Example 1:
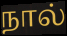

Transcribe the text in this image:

நால்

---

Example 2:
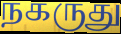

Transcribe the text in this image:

நகருது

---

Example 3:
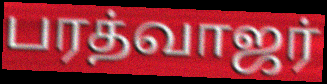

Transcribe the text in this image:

பரத்வாஜர்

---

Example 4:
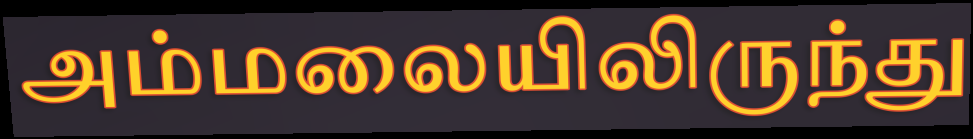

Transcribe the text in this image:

அம்மலையிலிருந்து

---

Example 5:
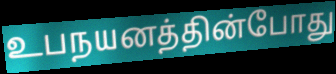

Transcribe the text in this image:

உபநயனத்தின்போது